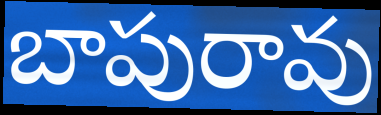
బాపురావు